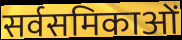
सर्वसमिकाओं